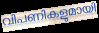
വിപണികളുമായി